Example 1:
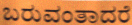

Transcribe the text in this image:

ಬರುವಂತಾದರೆ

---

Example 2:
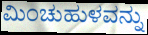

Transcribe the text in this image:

ಮಿಂಚುಹುಳವನ್ನು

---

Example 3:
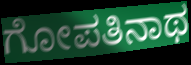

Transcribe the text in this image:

ಗೋಪತಿನಾಥ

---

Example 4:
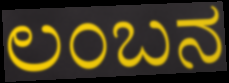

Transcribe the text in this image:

ಲಂಬನ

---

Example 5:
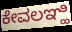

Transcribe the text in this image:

ಕೇವಲಞ್ಹಿ